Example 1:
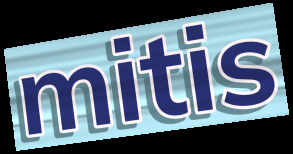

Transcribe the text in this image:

mitis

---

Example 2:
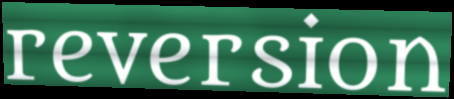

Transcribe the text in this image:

reversion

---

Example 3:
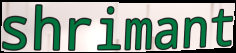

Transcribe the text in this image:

shrimant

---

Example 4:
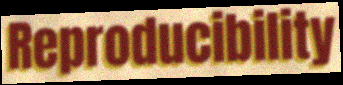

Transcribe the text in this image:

Reproducibility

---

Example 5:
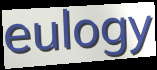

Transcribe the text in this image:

eulogy